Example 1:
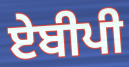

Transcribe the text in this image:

ਏਬੀਪੀ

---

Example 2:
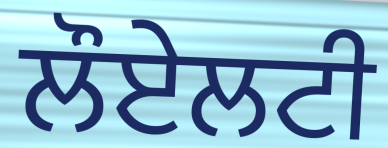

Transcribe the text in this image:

ਲੌਏਲਟੀ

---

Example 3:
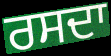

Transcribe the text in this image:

ਰਸਦਾ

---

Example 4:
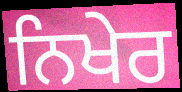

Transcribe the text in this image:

ਨਿਖੇਰ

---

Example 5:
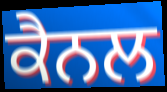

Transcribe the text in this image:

ਕੈਨਲ